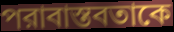
পরাবাস্তবতাকে